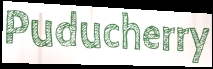
Puducherry